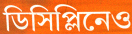
ডিসিপ্লিনেও